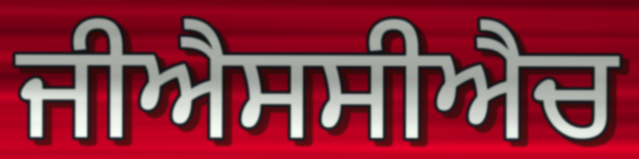
ਜੀਐਸਸੀਐਚ